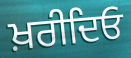
ਖ਼ਰੀਦਿਓ